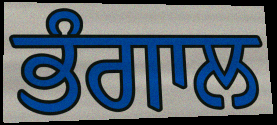
ਭੰਗਾਲ